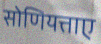
सोणियत्ताए